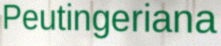
Peutingeriana